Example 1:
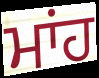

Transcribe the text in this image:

ਮਾਂਹ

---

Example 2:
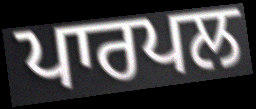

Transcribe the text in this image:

ਪਾਰਪਲ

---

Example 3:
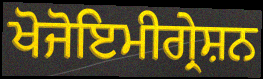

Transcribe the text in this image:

ਖੋਜੋਇਮੀਗ੍ਰੇਸ਼ਨ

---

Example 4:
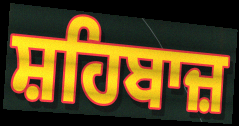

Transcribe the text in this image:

ਸ਼ਹਿਬਾਜ਼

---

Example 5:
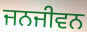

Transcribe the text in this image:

ਜਨਜੀਵਨ